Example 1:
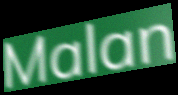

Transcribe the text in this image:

Malan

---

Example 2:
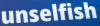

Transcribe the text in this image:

unselfish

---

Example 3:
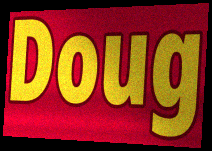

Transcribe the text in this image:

Doug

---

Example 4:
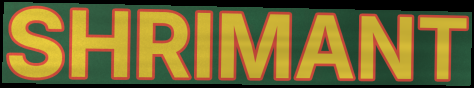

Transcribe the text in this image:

SHRIMANT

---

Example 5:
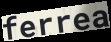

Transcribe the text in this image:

ferrea